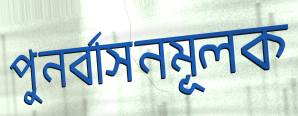
পুনর্বাসনমূলক